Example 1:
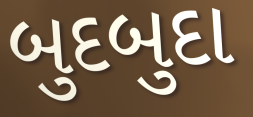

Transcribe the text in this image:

બુદબુદા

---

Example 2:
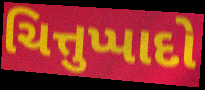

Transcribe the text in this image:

ચિત્તુપ્પાદો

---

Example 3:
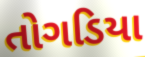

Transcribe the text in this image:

તોગડિયા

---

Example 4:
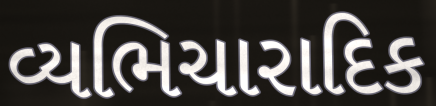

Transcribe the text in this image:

વ્યભિચારાદિક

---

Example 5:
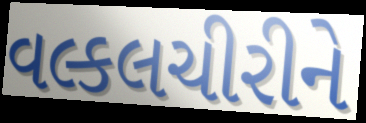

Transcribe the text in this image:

વલ્કલચીરીને